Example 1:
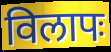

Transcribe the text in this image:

विलापः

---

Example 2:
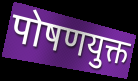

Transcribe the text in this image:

पोषणयुक्त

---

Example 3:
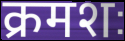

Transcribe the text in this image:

क्रमशः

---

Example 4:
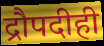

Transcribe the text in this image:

द्रौपदीही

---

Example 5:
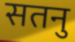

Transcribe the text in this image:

सतनु